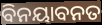
ବିନୟାବନତ